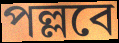
পল্লবে